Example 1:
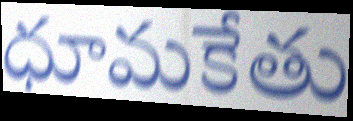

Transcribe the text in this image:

ధూమకేతు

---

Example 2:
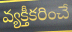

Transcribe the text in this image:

వ్యక్తీకరించే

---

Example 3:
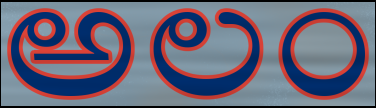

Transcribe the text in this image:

అలం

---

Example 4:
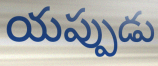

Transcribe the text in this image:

యప్పుడు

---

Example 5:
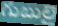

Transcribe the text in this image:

గుబులై